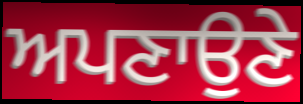
ਅਪਣਾਉਣੇ